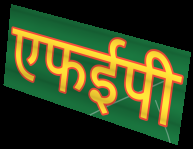
एफईपी